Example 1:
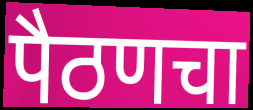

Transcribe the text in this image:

पैठणचा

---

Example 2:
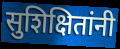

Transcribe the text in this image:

सुशिक्षितांनी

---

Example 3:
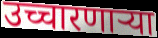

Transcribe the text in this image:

उच्चारणाऱ्या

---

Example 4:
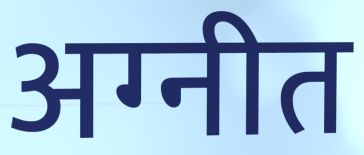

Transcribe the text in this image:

अग्नीत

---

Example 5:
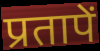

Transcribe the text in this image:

प्रतापें